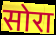
सोरा